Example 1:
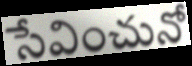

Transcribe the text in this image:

సేవించునో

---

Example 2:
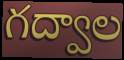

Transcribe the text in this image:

గద్వాల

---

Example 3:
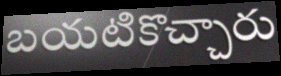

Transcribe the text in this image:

బయటికొచ్చారు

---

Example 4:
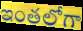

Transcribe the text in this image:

ఇంతలోగా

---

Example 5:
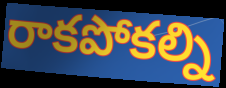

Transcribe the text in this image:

రాకపోకల్ని